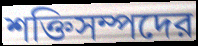
শক্তিসম্পদের